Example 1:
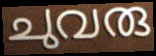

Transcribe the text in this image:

ചുവരു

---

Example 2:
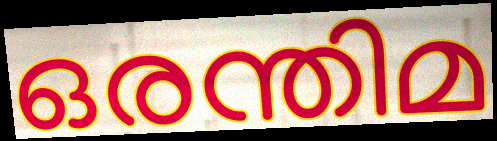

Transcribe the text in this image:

ഒരന്തിമ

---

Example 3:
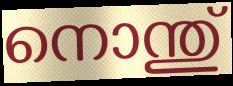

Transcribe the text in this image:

നൊന്തു്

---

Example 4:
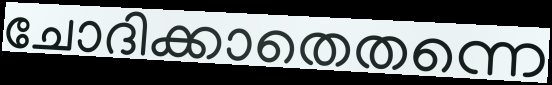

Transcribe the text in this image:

ചോദിക്കാതെതന്നെ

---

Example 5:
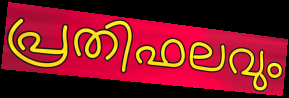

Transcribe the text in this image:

പ്രതിഫലവും